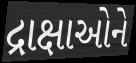
દ્રાક્ષાઓને